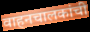
वाहनचालकांची